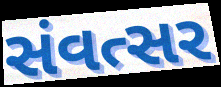
સંવત્સર